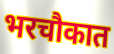
भरचौकात